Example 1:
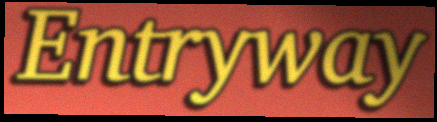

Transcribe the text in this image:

Entryway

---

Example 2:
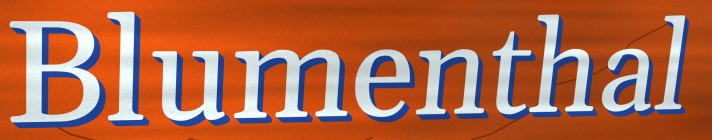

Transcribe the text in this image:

Blumenthal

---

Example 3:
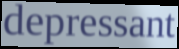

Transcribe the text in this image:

depressant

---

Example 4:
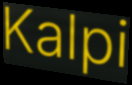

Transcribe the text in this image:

Kalpi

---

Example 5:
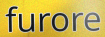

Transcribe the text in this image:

furore